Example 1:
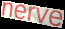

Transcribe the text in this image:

nerve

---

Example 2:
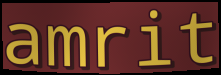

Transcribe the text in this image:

amrit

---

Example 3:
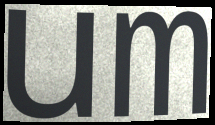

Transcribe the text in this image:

um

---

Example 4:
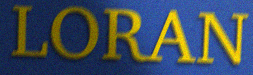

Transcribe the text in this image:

LORAN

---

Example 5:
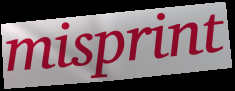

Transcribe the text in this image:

misprint